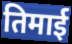
तिमाई